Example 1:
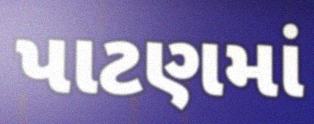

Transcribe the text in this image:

પાટણમાં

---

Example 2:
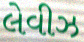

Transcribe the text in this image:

લેવીઝ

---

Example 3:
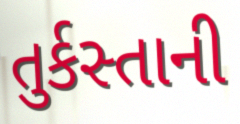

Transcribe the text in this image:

તુર્કસ્તાની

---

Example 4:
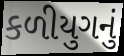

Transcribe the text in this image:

કળીયુગનું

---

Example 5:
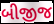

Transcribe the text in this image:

બીજીજ